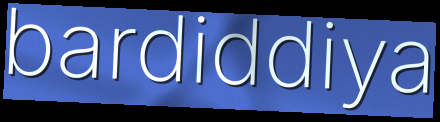
bardiddiya